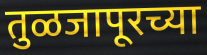
तुळजापूरच्या